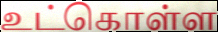
உட்கொள்ள